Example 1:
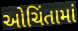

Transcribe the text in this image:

ઓચિંતામાં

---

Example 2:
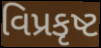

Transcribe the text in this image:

વિપ્રકૃષ્ટ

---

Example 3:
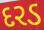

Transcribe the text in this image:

દરડ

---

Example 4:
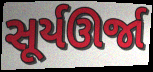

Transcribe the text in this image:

સૂર્યઊર્જા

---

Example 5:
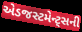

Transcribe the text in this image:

એડજસ્ટમેન્ટ્સની